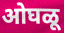
ओघळू